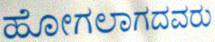
ಹೋಗಲಾಗದವರು